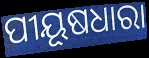
ପୀୟୂଷଧାରା